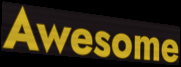
Awesome